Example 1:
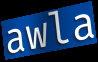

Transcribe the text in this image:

awla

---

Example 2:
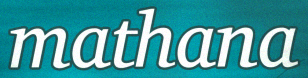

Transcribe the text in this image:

mathana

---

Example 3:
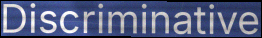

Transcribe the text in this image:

Discriminative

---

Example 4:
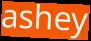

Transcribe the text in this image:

ashey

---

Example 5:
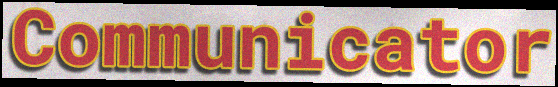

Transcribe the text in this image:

Communicator